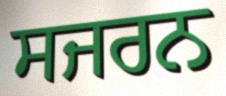
ਸਜਰਨ